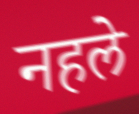
नहले